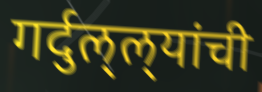
गर्दुल्ल्यांची